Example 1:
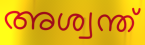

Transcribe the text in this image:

അശ്വന്ത്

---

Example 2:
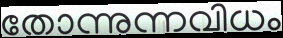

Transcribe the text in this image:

തോന്നുന്നവിധം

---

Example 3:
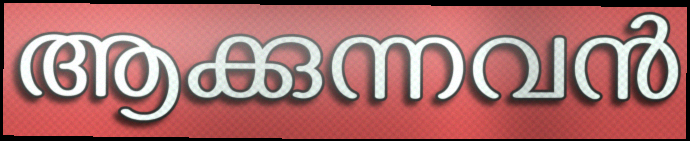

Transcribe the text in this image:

ആക്കുന്നവൻ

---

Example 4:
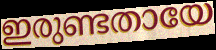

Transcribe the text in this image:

ഇരുണ്ടതായേ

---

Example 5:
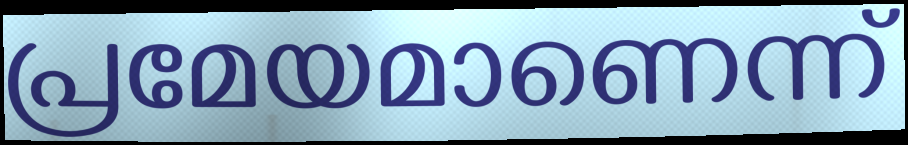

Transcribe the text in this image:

പ്രമേയമാണെന്ന്